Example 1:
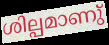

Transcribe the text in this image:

ശില്പമാണു്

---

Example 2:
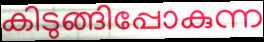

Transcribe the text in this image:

കിടുങ്ങിപ്പോകുന്ന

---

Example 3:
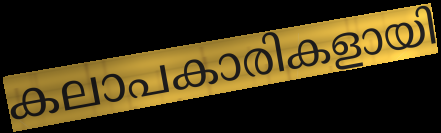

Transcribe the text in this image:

കലാപകാരികളായി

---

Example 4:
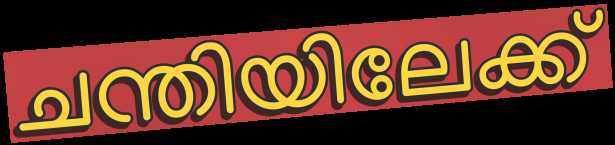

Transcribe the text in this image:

ചന്തിയിലേക്ക്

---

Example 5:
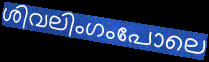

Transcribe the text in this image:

ശിവലിംഗംപോലെ